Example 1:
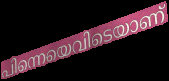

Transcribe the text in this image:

പിന്നെയെവിടെയാണ്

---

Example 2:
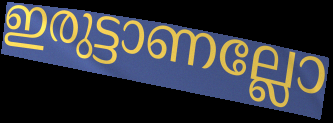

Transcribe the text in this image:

ഇരുട്ടാണല്ലോ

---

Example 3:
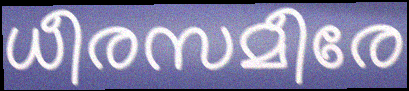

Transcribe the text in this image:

ധീരസമീരേ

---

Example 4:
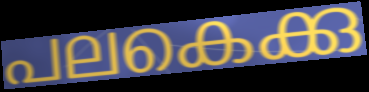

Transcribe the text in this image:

പലകെക്കു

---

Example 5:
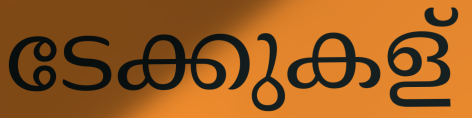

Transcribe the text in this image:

ടേക്കുകള്